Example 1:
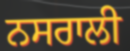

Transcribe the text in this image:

ਨਸਰਾਲੀ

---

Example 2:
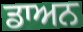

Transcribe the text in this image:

ਡਾਅਨ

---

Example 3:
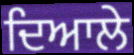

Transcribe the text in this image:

ਦਿਆਲੇ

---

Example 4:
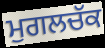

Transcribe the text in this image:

ਮੁਗਲਚੱਕ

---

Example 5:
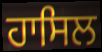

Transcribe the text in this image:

ਹਾਸਿਲ